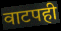
वाटपही